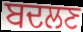
ਬਦਲਣ